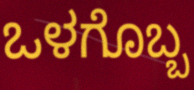
ಒಳಗೊಬ್ಬ